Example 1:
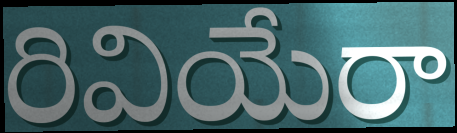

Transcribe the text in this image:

రివియేరా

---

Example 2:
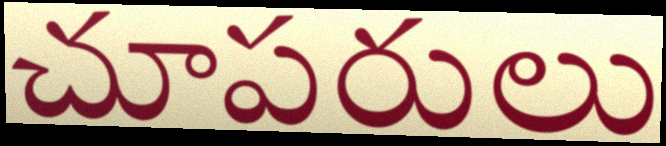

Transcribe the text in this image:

చూపరులు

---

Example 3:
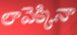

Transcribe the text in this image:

లావెక్కినా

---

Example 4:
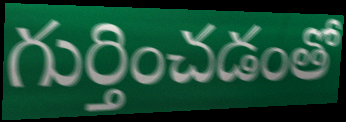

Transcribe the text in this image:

గుర్తించడంతో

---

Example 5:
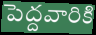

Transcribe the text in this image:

పెద్దవారికి